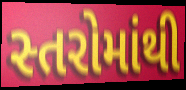
સ્તરોમાંથી